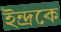
ইন্দ্রকে